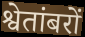
श्वेतांबरों